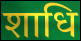
शाधि